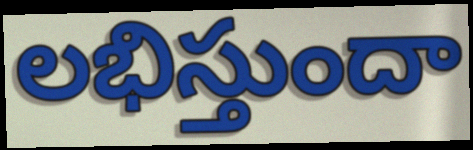
లభిస్తుందా